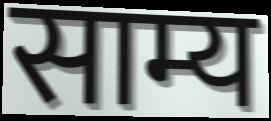
साम्‍य